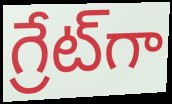
గ్రేట్‌గా